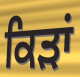
ਕਿੜਾਂ